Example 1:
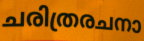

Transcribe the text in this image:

ചരിത്രരചനാ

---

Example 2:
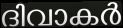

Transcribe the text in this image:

ദിവാകർ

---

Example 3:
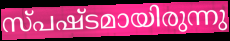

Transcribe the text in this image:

സ്പഷ്ടമായിരുന്നു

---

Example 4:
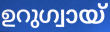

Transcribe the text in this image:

ഉറുഗ്വായ്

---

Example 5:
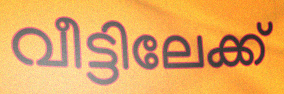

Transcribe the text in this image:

വീട്ടിലേക്ക്